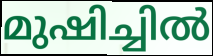
മുഷിച്ചിൽ